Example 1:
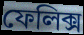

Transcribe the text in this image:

ফেলিক্স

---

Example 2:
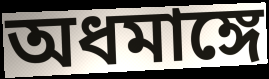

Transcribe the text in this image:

অধমাঙ্গে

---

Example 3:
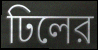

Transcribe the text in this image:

ঢিলের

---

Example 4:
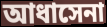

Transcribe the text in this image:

আধাসেনা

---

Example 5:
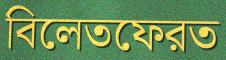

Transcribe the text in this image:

বিলেতফেরত